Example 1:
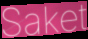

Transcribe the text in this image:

Saket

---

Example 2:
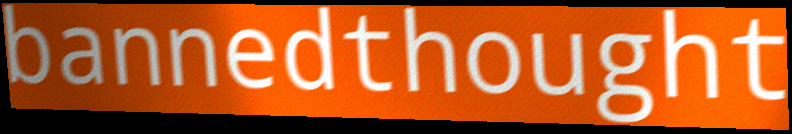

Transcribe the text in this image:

bannedthought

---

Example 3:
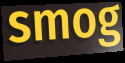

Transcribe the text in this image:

smog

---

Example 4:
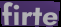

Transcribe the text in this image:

firte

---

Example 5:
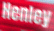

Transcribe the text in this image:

Henley